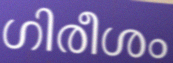
ഗിരീശം